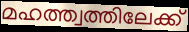
മഹത്ത്വത്തിലേക്ക്